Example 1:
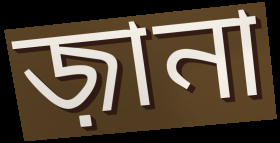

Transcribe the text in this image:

জ়ানা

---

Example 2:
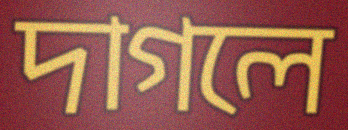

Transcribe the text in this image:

দাগলে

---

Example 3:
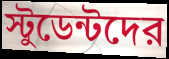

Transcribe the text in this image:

স্টুডেন্টদের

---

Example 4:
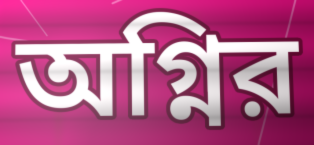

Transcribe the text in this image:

অগ্নির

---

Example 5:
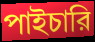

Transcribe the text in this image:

পাইচারি